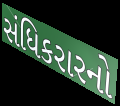
સંધિકરારનો